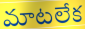
మాటలేక